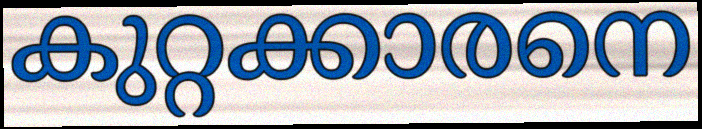
കുറ്റക്കാരനെ